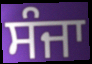
ਸੰਜਾ